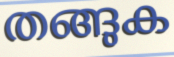
തങ്ങുക